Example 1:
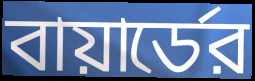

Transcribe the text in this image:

বায়ার্ডের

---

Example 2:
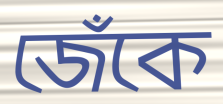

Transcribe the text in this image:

জেঁকে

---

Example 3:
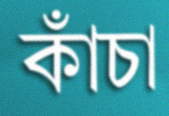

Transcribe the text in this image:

কাঁচা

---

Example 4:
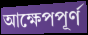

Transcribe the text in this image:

আক্ষেপপূর্ণ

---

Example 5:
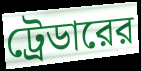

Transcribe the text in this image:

ট্রেডারের